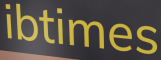
ibtimes